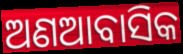
ଅଣଆବାସିକ